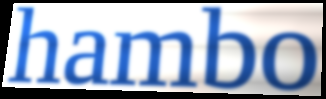
hambo